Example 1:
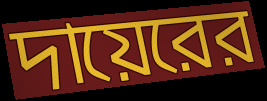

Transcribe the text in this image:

দায়েরের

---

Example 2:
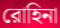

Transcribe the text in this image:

রোহিনা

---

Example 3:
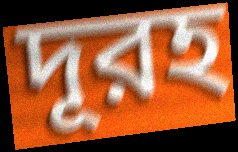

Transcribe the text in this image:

দূরহ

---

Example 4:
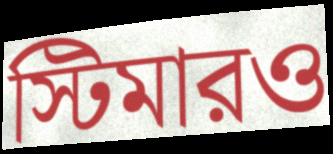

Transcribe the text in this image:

স্টিমারও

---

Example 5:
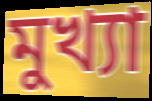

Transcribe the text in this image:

মুখ্যা